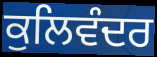
ਕੁਲਿਵੰਦਰ